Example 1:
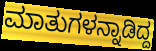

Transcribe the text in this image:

ಮಾತುಗಳನ್ನಾಡಿದ್ದ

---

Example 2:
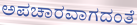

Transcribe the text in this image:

ಅಪಚಾರವಾಗದಂತೆ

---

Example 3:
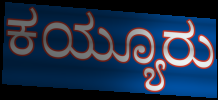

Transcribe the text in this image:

ಕಯ್ಯೂರು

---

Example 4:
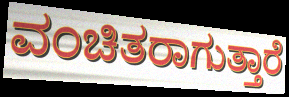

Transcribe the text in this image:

ವಂಚಿತರಾಗುತ್ತಾರೆ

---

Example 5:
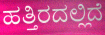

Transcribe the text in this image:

ಹತ್ತಿರದಲ್ಲಿದೆ